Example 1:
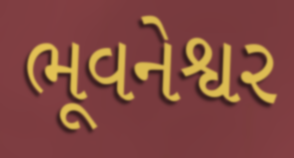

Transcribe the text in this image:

ભૂવનેશ્વર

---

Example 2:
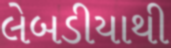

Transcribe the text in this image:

લેબડીયાથી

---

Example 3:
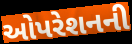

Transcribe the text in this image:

ઓપરેશનની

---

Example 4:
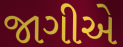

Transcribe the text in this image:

જાગીએ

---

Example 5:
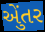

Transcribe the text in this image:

એુંતર